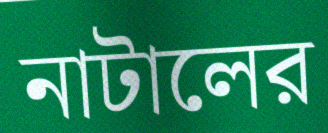
নাটালের